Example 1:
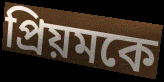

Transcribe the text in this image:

প্রিয়মকে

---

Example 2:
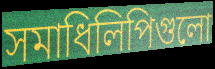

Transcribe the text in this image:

সমাধিলিপিগুলো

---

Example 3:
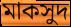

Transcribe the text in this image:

মাকসুদ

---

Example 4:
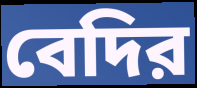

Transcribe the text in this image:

বেদির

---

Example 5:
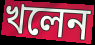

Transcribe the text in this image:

খলেন